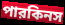
পারকিনস